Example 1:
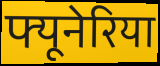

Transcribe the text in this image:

फ्यूनेरिया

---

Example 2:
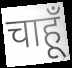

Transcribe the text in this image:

चाहूँ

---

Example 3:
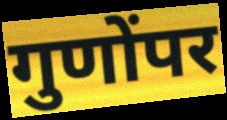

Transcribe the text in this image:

गुणोंपर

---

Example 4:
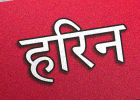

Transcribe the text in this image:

हरिन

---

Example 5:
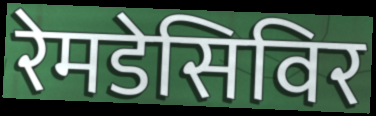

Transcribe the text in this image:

रेमडेसिविर